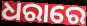
ଧରାରେ